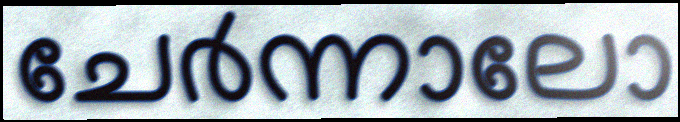
ചേർന്നാലോ